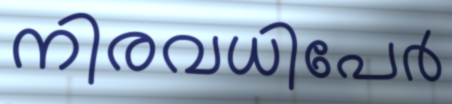
നിരവധിപേർ